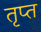
तृप्त